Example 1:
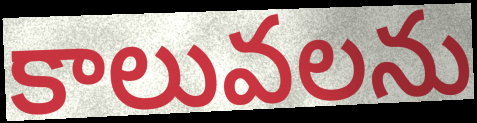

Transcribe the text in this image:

కాలువలను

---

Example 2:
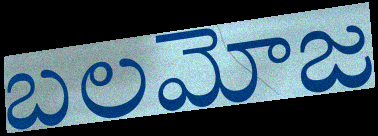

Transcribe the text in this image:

బలమోజ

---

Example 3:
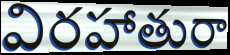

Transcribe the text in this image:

విరహాతురా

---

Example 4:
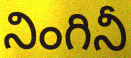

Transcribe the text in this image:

నింగినీ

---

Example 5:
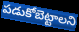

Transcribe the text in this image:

పడుకోబెట్టాలని